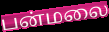
பன்மலை